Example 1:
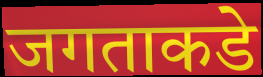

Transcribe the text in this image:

जगताकडे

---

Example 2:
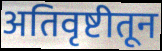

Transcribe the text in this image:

अतिवृष्टीतून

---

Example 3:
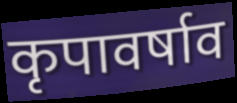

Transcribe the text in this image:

कृपावर्षाव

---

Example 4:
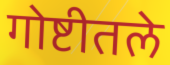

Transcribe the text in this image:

गोष्टीतले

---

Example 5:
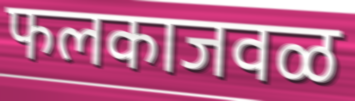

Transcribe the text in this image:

फलकाजवळ